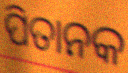
ପିତାନକ